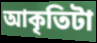
আকৃতিটা